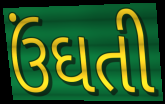
ઉંઘતી